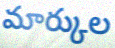
మార్కుల